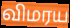
விமரய